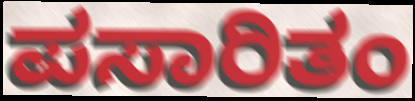
ಪಸಾರಿತಂ